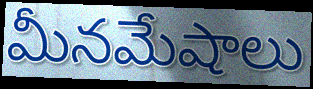
మీనమేషాలు